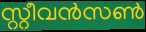
സ്റ്റീവൻസൺ